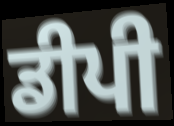
ਡੀਪੀ